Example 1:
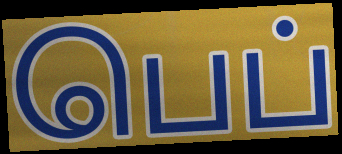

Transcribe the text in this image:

பெப்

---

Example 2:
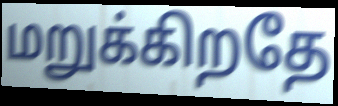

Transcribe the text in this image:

மறுக்கிறதே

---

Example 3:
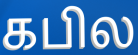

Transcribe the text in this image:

கபில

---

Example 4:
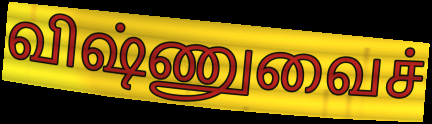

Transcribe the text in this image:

விஷ்ணுவைச்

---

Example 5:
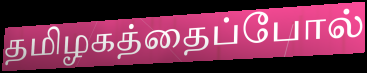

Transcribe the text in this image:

தமிழகத்தைப்போல்